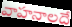
వాహనాలదే